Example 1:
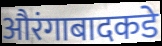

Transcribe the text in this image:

औरंगाबादकडे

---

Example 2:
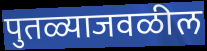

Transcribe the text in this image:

पुतळ्याजवळील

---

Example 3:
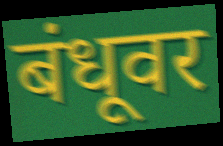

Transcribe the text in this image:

बंधूवर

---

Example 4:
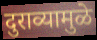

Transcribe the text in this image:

दुराव्यामुळे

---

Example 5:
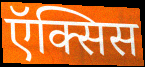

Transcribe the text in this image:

ऍक्सिस